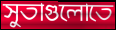
সুতাগুলোতে